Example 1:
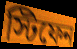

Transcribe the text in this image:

স্টিফেন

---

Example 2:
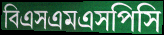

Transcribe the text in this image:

বিএসএমএসপিসি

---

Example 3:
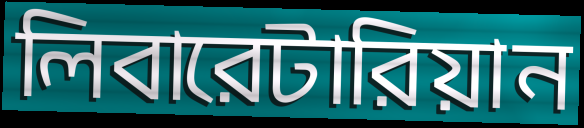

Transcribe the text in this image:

লিবারেটারিয়ান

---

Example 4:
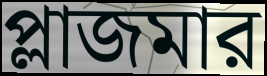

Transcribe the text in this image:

প্লাজমার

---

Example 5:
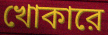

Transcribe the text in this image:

খোকারে